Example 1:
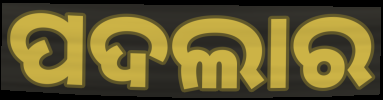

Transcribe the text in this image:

ପଦଲାର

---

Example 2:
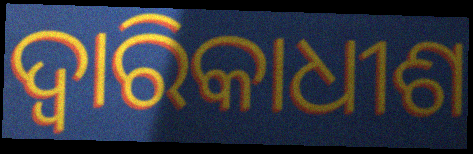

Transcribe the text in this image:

ଦ୍ୱାରିକାଧୀଶ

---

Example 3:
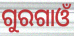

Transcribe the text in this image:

ଗୁରଗାଓଁ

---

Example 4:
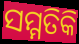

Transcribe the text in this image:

ସମ୍ମତିକି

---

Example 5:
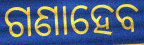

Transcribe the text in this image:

ଗଣାହେବ